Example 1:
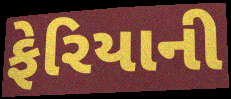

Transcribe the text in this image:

ફેરિયાની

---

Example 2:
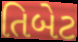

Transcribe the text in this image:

તિબેટ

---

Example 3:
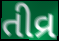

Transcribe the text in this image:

તીવ્ર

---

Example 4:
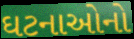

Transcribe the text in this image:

ઘટનાઓનો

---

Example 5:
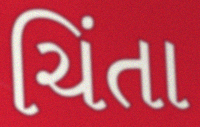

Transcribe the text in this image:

ચિંતા